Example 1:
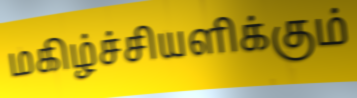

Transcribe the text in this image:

மகிழ்ச்சியளிக்கும்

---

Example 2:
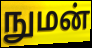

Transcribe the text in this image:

நுமன்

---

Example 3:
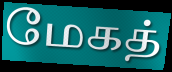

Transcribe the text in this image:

மேகத்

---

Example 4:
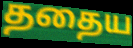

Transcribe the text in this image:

ததைய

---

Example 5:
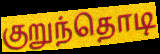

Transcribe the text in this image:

குறுந்தொடி